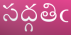
సద్గతిఁ